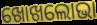
ଖୋଖଲୋଭା